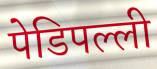
पेडिपल्ली